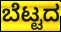
ಬೆಟ್ಟದ